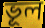
ভূল